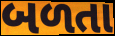
બળતા